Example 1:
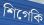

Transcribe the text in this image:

শিগেকি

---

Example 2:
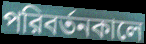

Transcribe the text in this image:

পরিবর্তনকালে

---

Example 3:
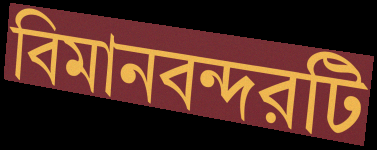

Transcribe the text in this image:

বিমানবন্দরটি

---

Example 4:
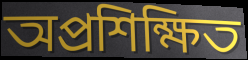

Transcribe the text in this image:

অপ্রশিক্ষিত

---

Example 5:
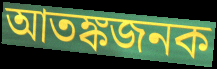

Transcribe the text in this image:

আতঙ্কজনক